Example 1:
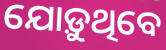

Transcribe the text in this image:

ଯୋଡ଼ୁଥିବେ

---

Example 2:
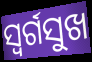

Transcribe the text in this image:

ସ୍ୱର୍ଗସୁଖ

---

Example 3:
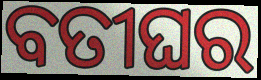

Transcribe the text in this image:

ବତୀଘର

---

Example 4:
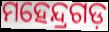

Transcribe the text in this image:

ମହେନ୍ଦ୍ରଗଡ଼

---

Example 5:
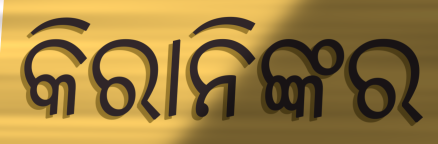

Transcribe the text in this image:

କିରାନିଙ୍କର